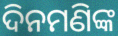
ଦିନମଣିଙ୍କ